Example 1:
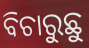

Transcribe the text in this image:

ବିଚାରୁଛୁ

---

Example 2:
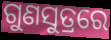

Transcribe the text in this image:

ଗୁଣସୁତ୍ରରେ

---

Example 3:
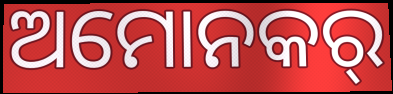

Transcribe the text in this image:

ଅମୋନକର୍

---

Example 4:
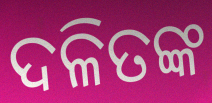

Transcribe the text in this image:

ଦଳିତଙ୍କ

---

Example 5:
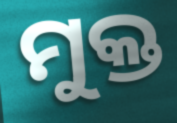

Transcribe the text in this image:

ମୁକ୍ତ